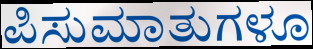
ಪಿಸುಮಾತುಗಳೂ